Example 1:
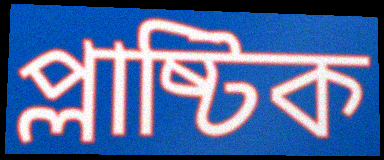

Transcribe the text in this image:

প্লাষ্টিক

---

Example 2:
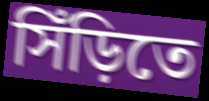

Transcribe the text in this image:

সিঁড়িতে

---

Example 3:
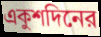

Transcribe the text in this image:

একুশদিনের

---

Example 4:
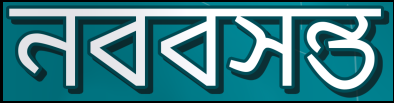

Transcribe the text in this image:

নববসন্ত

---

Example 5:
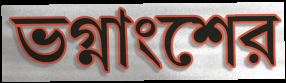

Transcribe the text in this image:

ভগ্নাংশের